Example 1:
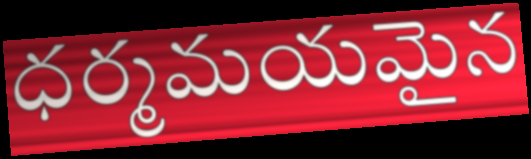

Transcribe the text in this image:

ధర్మమయమైన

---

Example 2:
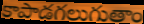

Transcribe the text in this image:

కాపాడగలుగుతాం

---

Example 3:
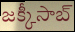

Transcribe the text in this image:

జక్కీసాబ్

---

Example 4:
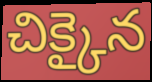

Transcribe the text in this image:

చిక్కైన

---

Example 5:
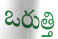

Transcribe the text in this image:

ఒరుత్తి